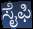
ಸೈಫಿ